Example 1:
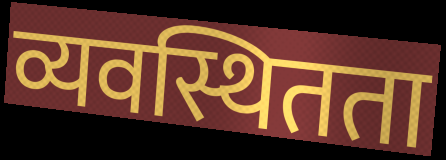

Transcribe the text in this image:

व्यवस्थितता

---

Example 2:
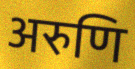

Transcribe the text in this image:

अरुणि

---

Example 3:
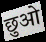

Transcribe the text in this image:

छुओ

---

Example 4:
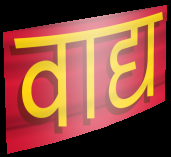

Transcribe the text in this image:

वाद्य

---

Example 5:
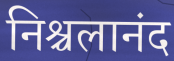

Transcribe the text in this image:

निश्चलानंद